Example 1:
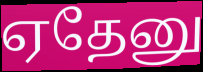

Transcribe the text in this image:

ஏதேனு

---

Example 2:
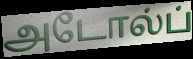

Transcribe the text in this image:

அடோல்ப்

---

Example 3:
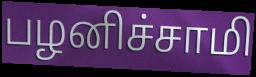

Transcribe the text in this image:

பழனிச்சாமி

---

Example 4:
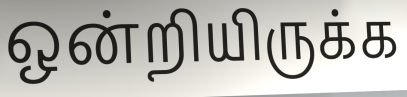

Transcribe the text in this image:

ஒன்றியிருக்க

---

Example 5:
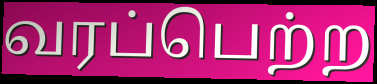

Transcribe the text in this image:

வரப்பெற்ற